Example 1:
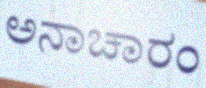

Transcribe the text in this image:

ಅನಾಚಾರಂ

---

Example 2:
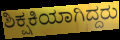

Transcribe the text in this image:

ಶಿಕ್ಷಕಿಯಾಗಿದ್ದರು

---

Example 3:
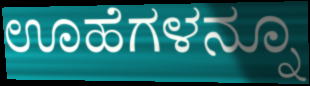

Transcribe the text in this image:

ಊಹೆಗಳನ್ನೂ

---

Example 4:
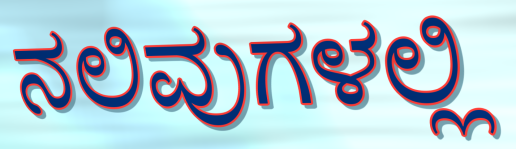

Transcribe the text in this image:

ನಲಿವುಗಳಲ್ಲಿ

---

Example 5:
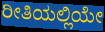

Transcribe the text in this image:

ರೀತಿಯಲ್ಲಿಯೇ